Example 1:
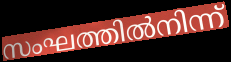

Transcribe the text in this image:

സംഘത്തിൽനിന്ന്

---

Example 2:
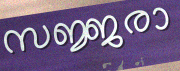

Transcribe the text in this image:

സജ്ജരാ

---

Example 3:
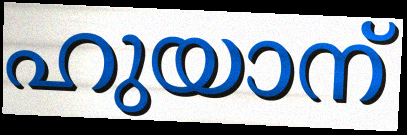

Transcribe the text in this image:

ഹുയാന്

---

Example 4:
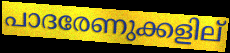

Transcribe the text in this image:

പാദരേണുക്കളില്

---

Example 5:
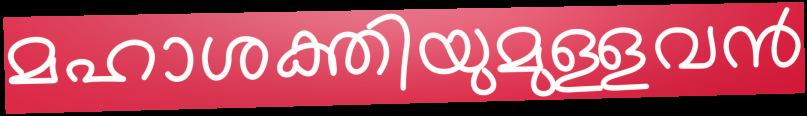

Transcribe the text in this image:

മഹാശക്തിയുമുള്ളവൻ